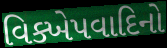
વિક્ખેપવાદિનો